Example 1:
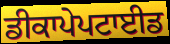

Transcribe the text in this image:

ਡੀਕਾਪੇਪਟਾਈਡ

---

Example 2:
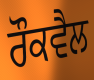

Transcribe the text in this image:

ਰੌਕਵੈਲ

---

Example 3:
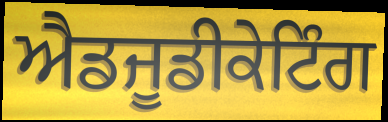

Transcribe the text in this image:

ਐਡਜੂਡੀਕੇਟਿੰਗ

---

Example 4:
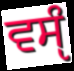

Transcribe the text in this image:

ਵਸੵੰ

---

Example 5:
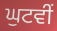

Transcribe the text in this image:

ਘੁਟਵੀਂ